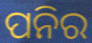
ପନିର